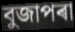
বুজাপৰা